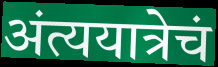
अंत्ययात्रेचं